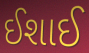
ઈશાઈ